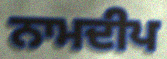
ਨਾਮਦੀਪ